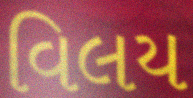
વિલય